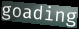
goading